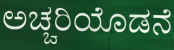
ಅಚ್ಚರಿಯೊಡನೆ